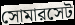
সোমারসেট